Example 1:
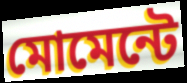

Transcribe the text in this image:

মোমেন্টে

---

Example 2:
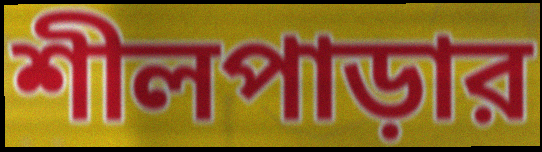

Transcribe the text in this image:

শীলপাড়ার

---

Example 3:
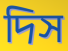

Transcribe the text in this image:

দিস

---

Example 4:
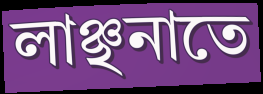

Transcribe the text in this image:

লাঞ্ছনাতে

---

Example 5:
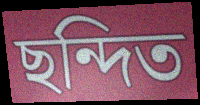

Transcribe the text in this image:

ছন্দিত